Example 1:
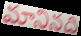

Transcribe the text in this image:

మానినది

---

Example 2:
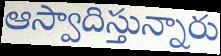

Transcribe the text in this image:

ఆస్వాదిస్తున్నారు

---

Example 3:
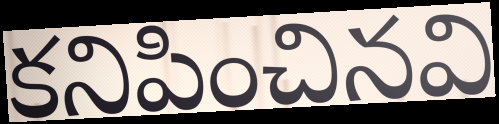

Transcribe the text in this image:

కనిపించినవి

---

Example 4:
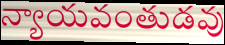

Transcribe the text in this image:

న్యాయవంతుడవు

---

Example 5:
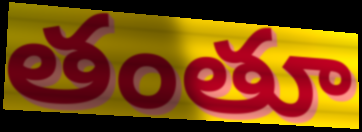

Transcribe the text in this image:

తంతూ